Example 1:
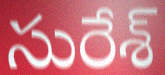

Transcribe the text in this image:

సురేశ్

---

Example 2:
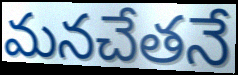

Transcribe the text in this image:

మనచేతనే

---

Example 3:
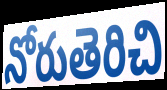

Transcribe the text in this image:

నోరుతెరిచి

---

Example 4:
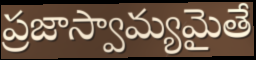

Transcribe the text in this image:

ప్రజాస్వామ్యమైతే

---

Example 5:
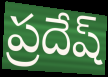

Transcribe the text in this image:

ప్రదేష్